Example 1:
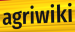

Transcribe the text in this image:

agriwiki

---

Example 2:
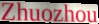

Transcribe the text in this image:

Zhuozhou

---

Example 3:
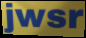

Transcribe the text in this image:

jwsr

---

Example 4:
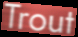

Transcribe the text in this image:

Trout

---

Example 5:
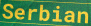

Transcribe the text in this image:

Serbian